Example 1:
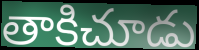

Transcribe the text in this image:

తాకిచూడు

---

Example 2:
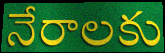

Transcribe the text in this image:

నేరాలకు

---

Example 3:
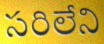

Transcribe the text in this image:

సరిలేని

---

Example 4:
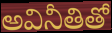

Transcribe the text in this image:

అవినీతితో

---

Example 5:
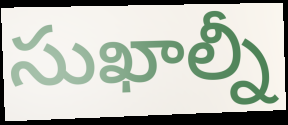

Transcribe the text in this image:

సుఖాల్నీ